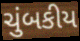
ચુંબકીય